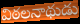
విఠలనాథుడు